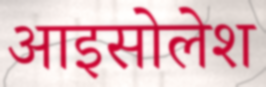
आइसोलेश